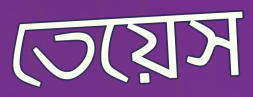
তেয়েস